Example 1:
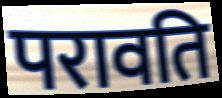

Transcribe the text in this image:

परावति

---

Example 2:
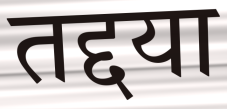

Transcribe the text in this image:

तद्दया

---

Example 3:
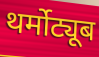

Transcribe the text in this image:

थर्मोट्यूब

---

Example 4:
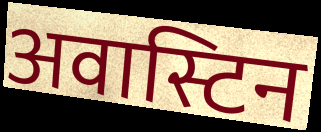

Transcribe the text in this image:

अवास्टिन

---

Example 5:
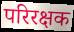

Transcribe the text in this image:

परिरक्षक